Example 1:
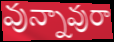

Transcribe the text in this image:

వున్నావురా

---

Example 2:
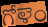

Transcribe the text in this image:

గోళెం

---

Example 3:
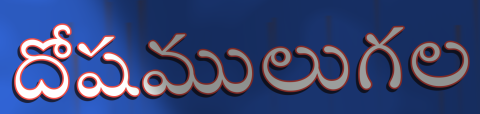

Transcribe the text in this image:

దోషములుగల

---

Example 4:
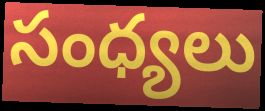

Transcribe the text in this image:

సంధ్యలు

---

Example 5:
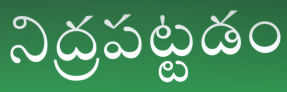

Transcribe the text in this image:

నిద్రపట్టడం